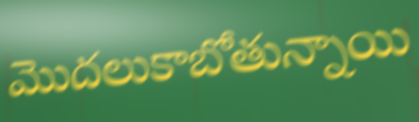
మొదలుకాబోతున్నాయి